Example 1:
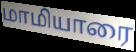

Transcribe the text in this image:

மாமியாரை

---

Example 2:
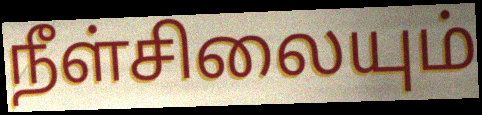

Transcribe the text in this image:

நீள்சிலையும்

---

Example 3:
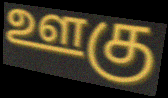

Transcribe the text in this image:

ஊகு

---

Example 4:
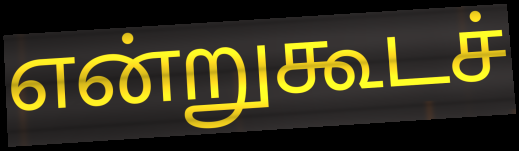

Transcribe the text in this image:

என்றுகூடச்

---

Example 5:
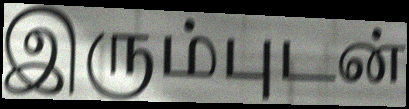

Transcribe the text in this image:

இரும்புடன்